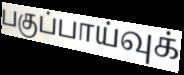
பகுப்பாய்வுக்